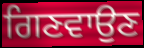
ਗਿਣਵਾਉਣ